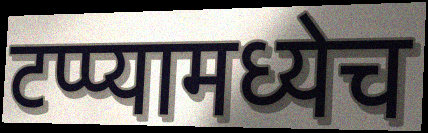
टप्प्यामध्येच